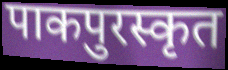
पाकपुरस्कृत